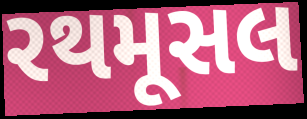
રથમૂસલ